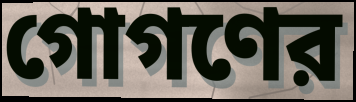
গোগণের